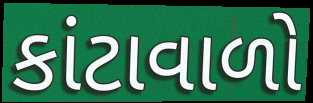
કાંટાવાળો